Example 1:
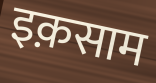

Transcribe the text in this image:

इक़साम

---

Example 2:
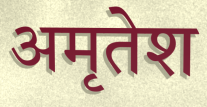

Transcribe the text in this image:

अमृतेश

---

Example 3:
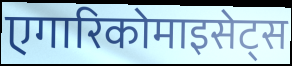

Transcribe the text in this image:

एगारिकोमाइसेट्स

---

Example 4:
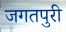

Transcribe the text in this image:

जगतपुरी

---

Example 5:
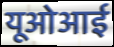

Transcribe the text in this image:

यूओआई